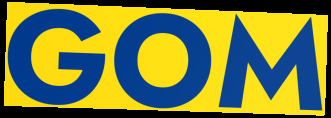
GOM